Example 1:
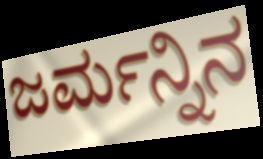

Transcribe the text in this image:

ಜರ್ಮನ್ನಿನ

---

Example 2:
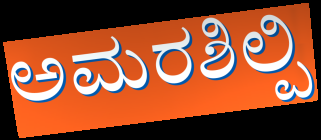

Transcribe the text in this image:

ಅಮರಶಿಲ್ಪಿ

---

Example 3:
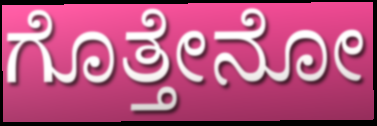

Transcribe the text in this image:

ಗೊತ್ತೇನೋ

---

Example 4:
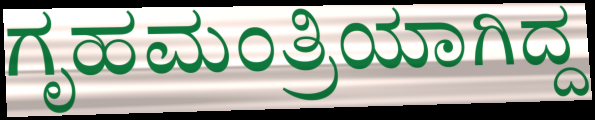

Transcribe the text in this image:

ಗೃಹಮಂತ್ರಿಯಾಗಿದ್ದ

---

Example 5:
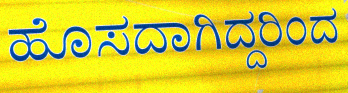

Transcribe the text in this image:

ಹೊಸದಾಗಿದ್ದರಿಂದ